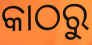
କାଠରୁ